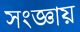
সংজ্ঞায়